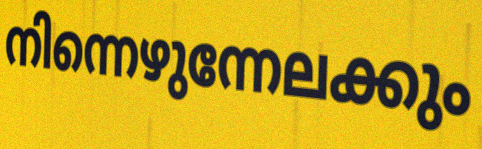
നിന്നെഴുന്നേലക്കും